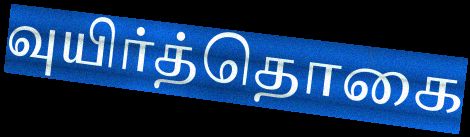
வுயிர்த்தொகை